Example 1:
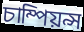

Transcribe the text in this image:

চাম্পিয়ন্স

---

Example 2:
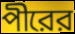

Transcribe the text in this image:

পীরের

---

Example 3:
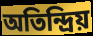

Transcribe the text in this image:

অতিন্দ্রিয়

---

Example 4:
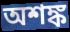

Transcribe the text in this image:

অশঙ্ক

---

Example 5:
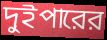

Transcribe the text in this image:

দুইপারের